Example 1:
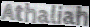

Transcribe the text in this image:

Athaliah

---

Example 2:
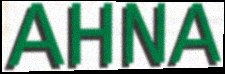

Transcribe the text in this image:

AHNA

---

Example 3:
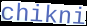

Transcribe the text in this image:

chikni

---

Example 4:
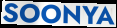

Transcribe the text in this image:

SOONYA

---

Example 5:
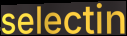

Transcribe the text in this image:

selectin